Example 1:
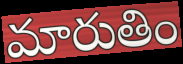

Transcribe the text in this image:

మారుతిం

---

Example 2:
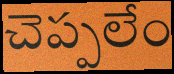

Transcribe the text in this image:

చెప్పలేం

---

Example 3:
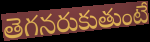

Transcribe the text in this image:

తెగనరుకుతుంటే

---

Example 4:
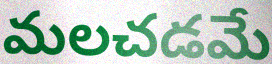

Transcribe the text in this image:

మలచడమే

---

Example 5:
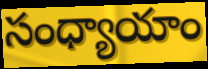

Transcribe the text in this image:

సంధ్యాయాం